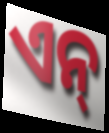
ଏନ୍